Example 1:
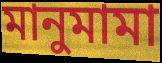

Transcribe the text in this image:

মানুমামা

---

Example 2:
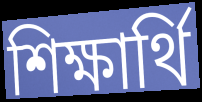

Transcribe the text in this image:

শিক্ষার্থি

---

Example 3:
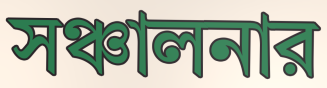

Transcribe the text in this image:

সঞ্চালনার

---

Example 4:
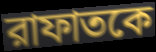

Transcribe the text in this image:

রাফাতকে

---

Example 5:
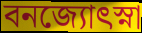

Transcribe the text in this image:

বনজ্যোৎস্না